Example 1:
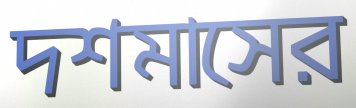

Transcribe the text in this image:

দশমাসের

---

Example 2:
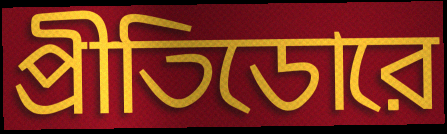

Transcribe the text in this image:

প্রীতিডোরে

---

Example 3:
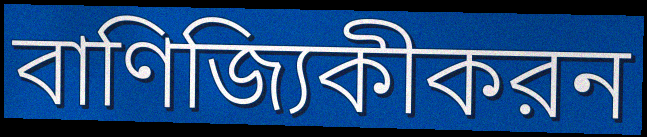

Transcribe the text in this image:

বাণিজ্যিকীকরন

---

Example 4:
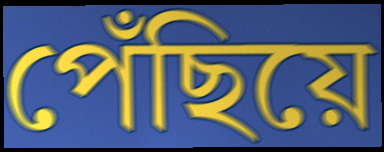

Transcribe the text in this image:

পেঁছিয়ে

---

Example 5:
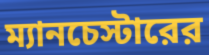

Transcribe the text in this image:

ম্যানচেস্টারের